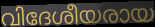
വിദേശീയരായ